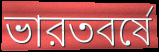
ভারতবর্ষে